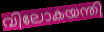
വിലോകയന്തി